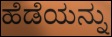
ಹೆಡೆಯನ್ನು